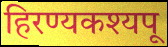
हिरण्यकश्यपू